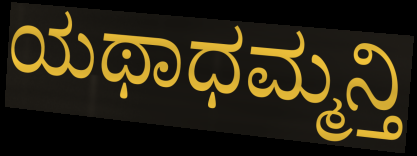
ಯಥಾಧಮ್ಮನ್ತಿ